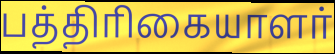
பத்திரிகையாளர்